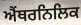
ਐਂਥਰਨਿਲਿਕ